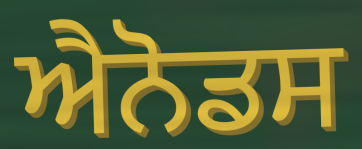
ਐਨੋਡਸ